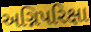
અગ્નિપરિક્ષા